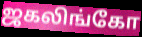
ஜகலிங்கோ